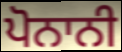
ਪੋਨਾਨੀ